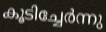
കൂടിച്ചേർന്നു